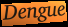
Dengue